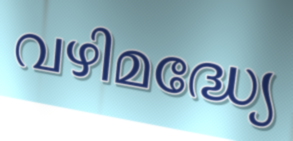
വഴിമദ്ധ്യേ